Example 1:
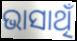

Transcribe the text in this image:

ଭାସାଥିଁ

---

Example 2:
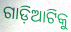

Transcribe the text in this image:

ଗାଡ଼ିଆଟିକୁ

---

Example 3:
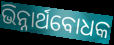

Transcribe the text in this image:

ଭିନ୍ନାର୍ଥବୋଧକ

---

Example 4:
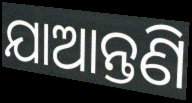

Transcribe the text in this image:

ଯାଆନ୍ତଣି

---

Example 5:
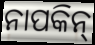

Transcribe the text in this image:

ନାପକିନ୍